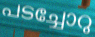
പടച്ചോറു